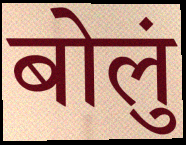
बोलुं